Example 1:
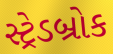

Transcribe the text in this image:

સ્ટ્રેડબ્રોક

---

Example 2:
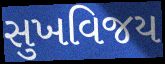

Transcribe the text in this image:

સુખવિજય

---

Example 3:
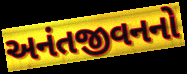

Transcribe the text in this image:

અનંતજીવનનો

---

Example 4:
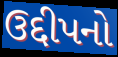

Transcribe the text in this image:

ઉદ્દીપનો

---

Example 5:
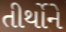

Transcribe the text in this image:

તીર્થોને